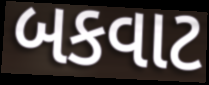
બકવાટ